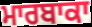
ਮਾਰਬਾਕਾ